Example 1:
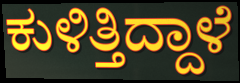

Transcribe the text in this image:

ಕುಳಿತ್ತಿದ್ದಾಳೆ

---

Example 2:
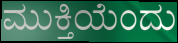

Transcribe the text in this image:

ಮುಕ್ತಿಯೆಂದು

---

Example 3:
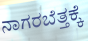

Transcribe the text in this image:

ನಾಗರಬೆತ್ತಕ್ಕೆ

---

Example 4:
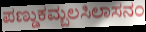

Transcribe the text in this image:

ಪಣ್ಡುಕಮ್ಬಲಸಿಲಾಸನಂ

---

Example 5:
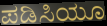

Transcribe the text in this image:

ಪಡಿಸಿಯೂ